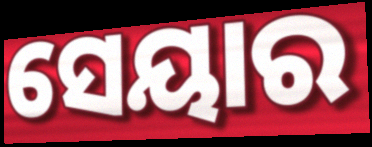
ସେୟାର